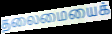
தலைமையைக்